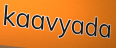
kaavyada